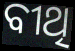
ବୀଥି